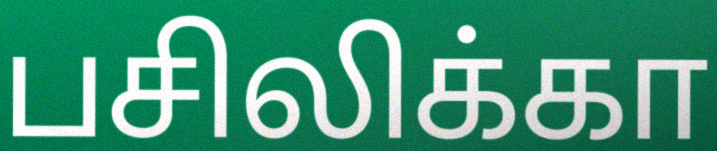
பசிலிக்கா